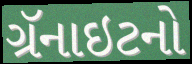
ગ્રૅનાઇટનો